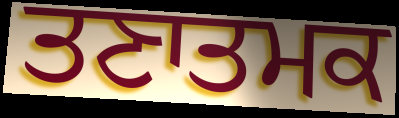
ਤਣਾਤਮਕ